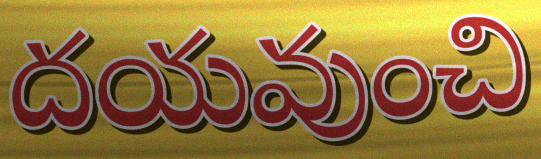
దయవుంచి